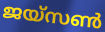
ജയ്സൺ